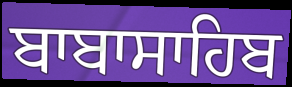
ਬਾਬਾਸਾਹਿਬ